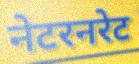
नेटरनरेट